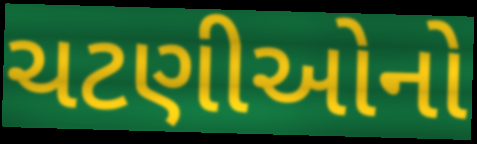
ચટણીઓનો